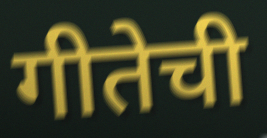
गीतेची